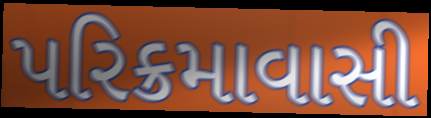
પરિક્રમાવાસી